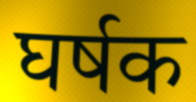
घर्षक